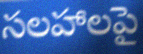
సలహాలపై